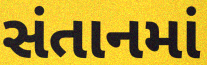
સંતાનમાં